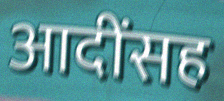
आदींसह